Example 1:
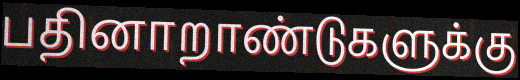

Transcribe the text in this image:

பதினாறாண்டுகளுக்கு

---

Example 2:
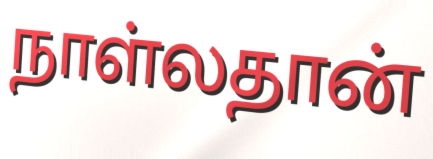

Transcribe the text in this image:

நாள்லதான்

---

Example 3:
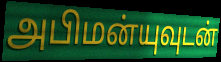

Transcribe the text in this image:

அபிமன்யுவுடன்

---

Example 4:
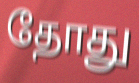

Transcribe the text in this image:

தோது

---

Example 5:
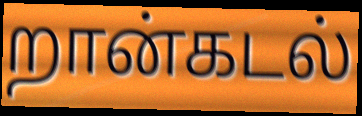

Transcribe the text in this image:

றான்கடல்